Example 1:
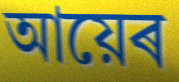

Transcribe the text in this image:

আয়েৰ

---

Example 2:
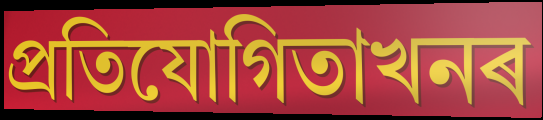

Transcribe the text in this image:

প্ৰতিযোগিতাখনৰ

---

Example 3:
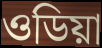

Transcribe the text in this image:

ওডিয়া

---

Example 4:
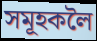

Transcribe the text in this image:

সমূহকলৈ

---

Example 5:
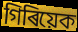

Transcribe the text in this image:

গিৰিয়েক